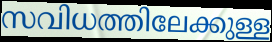
സവിധത്തിലേക്കുള്ള